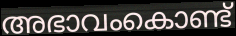
അഭാവംകൊണ്ട്